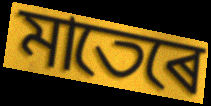
মাতেৰে